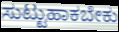
ಸುಟ್ಟುಹಾಕಬೇಕು